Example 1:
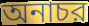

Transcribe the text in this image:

অনাচর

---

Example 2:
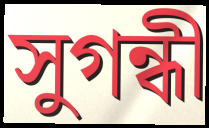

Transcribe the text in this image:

সুগন্ধী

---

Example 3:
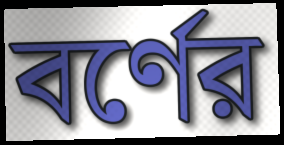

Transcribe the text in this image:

বর্ণের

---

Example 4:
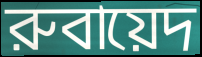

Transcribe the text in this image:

রুবায়েদ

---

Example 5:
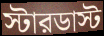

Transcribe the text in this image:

স্টারডাস্ট